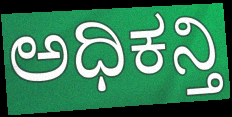
ಅಧಿಕನ್ತಿ